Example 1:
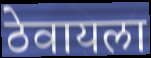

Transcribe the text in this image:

ठेवायला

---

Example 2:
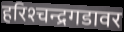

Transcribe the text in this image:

हरिश्चन्द्रगडावर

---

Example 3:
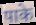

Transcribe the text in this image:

पाके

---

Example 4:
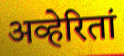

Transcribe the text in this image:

अव्हेरितां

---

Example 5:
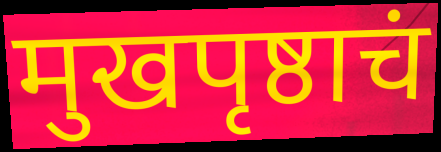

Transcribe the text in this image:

मुखपृष्ठाचं